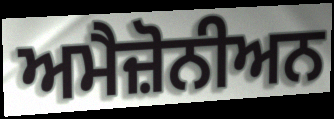
ਅਮੈਜ਼ੋਨੀਅਨ